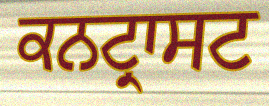
ਕਨਟ੍ਰਾਸਟ